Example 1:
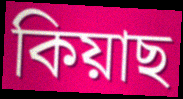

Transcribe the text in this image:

কিয়াছ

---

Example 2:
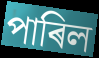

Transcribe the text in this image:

পাৰিল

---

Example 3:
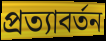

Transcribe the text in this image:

প্ৰত্যাবৰ্তন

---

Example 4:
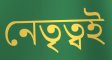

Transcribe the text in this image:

নেতৃত্বই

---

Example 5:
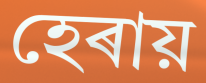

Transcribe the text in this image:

হেৰায়